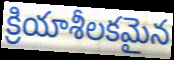
క్రియాశీలకమైన